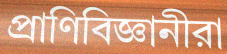
প্রাণিবিজ্ঞানীরা